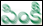
పింకీ